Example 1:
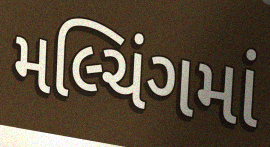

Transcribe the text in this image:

મલ્ચિંગમાં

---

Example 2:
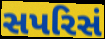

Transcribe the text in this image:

સપરિસં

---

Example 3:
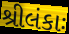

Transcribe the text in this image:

શ્રીલંકાઃ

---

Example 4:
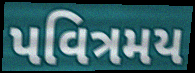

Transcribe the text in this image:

પવિત્રમય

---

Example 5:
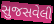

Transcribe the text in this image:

સુજસવેલી